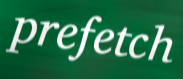
prefetch